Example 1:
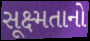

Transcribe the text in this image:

સૂક્ષ્મતાનો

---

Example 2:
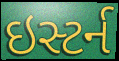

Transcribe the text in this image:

ઇસ્ટર્ન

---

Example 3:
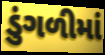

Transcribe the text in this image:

ડુંગળીમાં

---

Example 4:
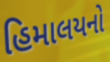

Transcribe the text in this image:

હિમાલયનો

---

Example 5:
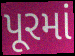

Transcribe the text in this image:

પૂરમાં